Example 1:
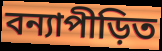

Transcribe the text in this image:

বন্যাপীড়িত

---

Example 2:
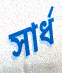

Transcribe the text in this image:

সার্ধ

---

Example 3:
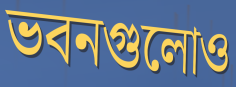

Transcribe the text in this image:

ভবনগুলোও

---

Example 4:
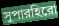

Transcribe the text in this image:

সুপারহিরো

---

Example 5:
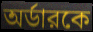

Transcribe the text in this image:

অর্ডারকে